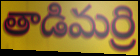
తాడిమర్రి